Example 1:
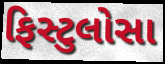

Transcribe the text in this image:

ફિસ્ટુલોસા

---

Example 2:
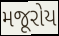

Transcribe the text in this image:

મજૂરોય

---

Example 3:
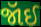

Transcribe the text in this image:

જૉઈ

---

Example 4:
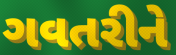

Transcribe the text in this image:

ગવતરીને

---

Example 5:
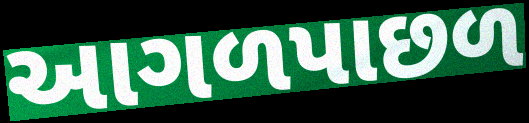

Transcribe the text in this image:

આગળપાછળ